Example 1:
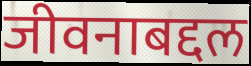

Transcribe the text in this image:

जीवनाबद्दल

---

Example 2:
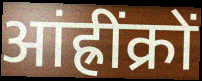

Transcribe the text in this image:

आंह्रींक्रों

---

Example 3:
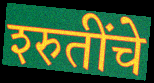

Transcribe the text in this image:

श्रुतींचे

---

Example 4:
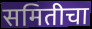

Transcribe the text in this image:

समितीचा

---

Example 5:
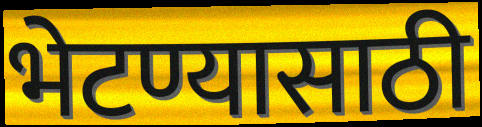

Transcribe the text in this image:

भेटण्यासाठी